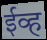
ईव्ह